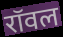
रॉवल